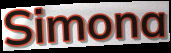
Simona